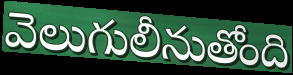
వెలుగులీనుతోంది